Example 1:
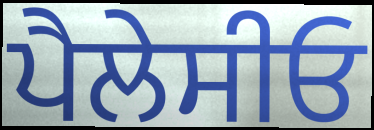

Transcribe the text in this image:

ਪੈਲੇਸੀਓ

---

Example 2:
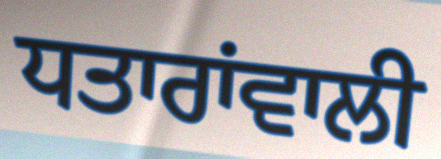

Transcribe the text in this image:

ਧਤਾਰਾਂਵਾਲੀ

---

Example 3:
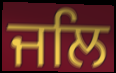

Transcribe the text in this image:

ਜਲਿ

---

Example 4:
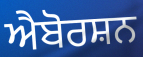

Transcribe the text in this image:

ਐਬੋਰਸ਼ਨ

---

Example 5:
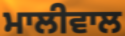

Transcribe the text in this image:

ਮਾਲੀਵਾਲ